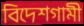
বিদেশগামী